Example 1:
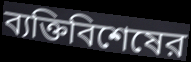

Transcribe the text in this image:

ব্যক্তিবিশেষের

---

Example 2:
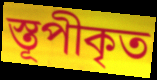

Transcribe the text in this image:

স্তূপীকৃত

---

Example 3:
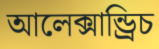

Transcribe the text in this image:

আলেক্সান্ড্রিচ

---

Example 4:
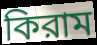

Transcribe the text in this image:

কিরাম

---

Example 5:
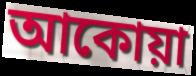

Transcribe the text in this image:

আকোয়া